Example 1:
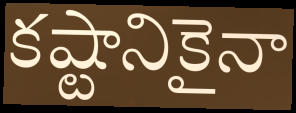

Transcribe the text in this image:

కష్టానికైనా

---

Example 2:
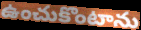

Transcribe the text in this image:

ఉంచుకొంటాను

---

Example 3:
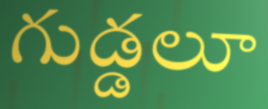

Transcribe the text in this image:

గుడ్డలూ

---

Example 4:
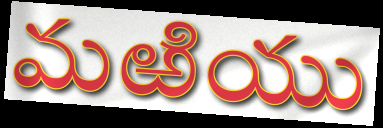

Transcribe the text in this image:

మఱియు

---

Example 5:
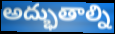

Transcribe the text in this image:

అద్భుతాల్ని